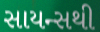
સાયન્સથી